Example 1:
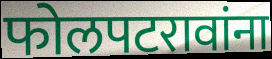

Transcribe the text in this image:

फोलपटरावांना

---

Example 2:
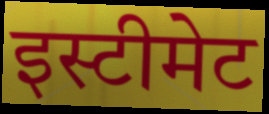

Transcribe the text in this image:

इस्टीमेट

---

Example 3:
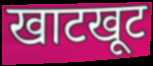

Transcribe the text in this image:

खाटखूट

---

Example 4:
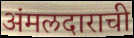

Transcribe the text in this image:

अंमलदाराची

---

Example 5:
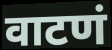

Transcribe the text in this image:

वाटणं